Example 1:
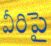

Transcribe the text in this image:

వీరిపై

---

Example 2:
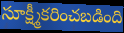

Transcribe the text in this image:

సూక్ష్మీకరించబడింది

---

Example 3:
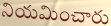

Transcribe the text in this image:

నియమించారు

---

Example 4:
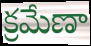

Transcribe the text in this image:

క్రమేణా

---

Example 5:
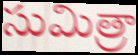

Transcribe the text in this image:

సుమిత్రా